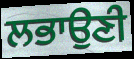
ਲਭਾਉਣੀ